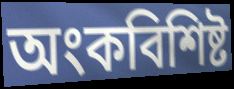
অংকবিশিষ্ট